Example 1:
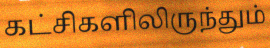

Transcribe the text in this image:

கட்சிகளிலிருந்தும்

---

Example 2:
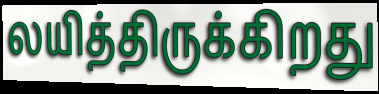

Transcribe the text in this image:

லயித்திருக்கிறது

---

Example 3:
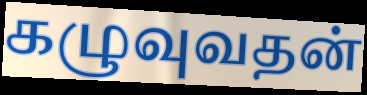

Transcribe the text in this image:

கழுவுவதன்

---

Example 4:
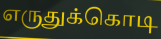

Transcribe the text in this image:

எருதுக்கொடி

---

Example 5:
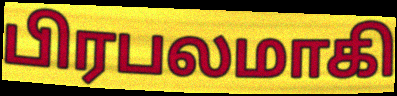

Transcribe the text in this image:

பிரபலமாகி